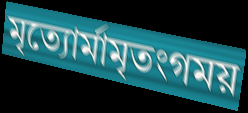
মৃত্যোর্মামৃতংগময়